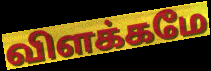
விளக்கமே